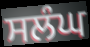
ਸਲੰਘ